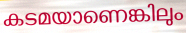
കടമയാണെങ്കിലും